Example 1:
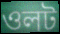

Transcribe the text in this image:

ওলট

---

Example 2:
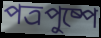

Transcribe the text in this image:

পত্রপুষ্পে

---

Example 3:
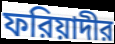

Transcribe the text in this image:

ফরিয়াদীর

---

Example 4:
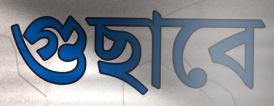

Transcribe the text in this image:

গুছাবে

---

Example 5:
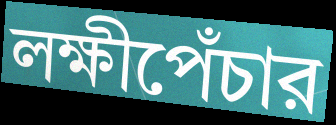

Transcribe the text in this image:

লক্ষীপেঁচার